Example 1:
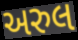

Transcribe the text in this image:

અરુલ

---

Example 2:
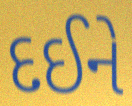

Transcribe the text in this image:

દઈને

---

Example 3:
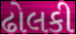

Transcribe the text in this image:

ઢોલકી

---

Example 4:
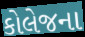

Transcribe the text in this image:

કોલેજના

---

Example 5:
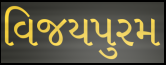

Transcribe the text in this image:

વિજયપુરમ